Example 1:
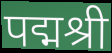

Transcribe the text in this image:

पद्मश्री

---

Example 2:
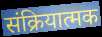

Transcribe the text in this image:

संक्रियात्मक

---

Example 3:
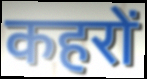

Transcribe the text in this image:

कहरों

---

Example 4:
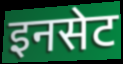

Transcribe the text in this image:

इनसेट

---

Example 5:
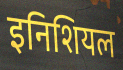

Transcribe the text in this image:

इनिशियल